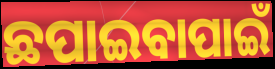
ଛପାଇବାପାଇଁ